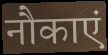
नौकाएं